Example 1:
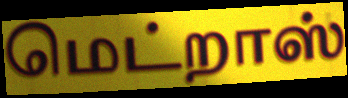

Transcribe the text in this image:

மெட்றாஸ்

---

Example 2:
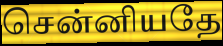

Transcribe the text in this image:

சென்னியதே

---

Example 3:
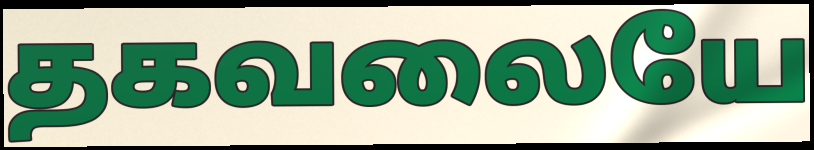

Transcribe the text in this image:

தகவலையே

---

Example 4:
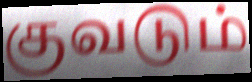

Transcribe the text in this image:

குவடும்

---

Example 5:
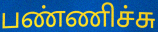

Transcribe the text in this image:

பண்ணிச்சு